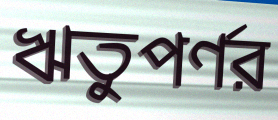
ঋতুপর্ণর